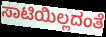
ಸಾಟಿಯಿಲ್ಲದಂತೆ